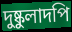
দুষ্কুলাদপি